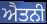
ਐਤਨੀ